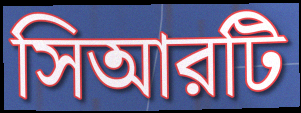
সিআরটি